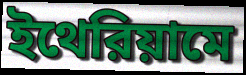
ইথেরিয়ামে